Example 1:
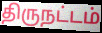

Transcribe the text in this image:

திருநட்டம்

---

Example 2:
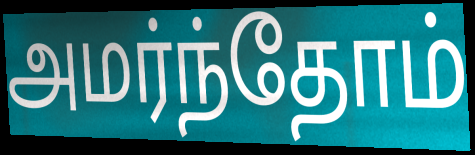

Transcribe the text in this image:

அமர்ந்தோம்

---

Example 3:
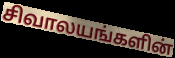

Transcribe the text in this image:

சிவாலயங்களின்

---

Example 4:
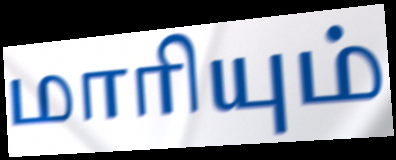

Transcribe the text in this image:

மாரியும்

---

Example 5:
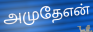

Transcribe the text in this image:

அமுதேஎன்